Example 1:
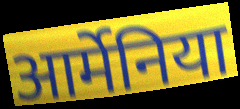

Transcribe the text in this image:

आर्मेनिया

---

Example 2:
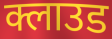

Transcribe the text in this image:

क्लाउड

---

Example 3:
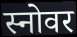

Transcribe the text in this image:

स्नोवर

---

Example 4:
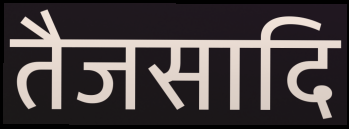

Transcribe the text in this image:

तैजसादि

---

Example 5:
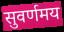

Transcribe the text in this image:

सुवर्णमय